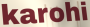
karohi